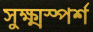
সুক্ষ্মস্পর্শ